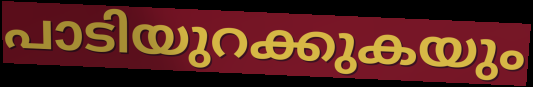
പാടിയുറക്കുകയും